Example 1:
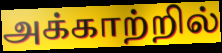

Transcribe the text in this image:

அக்காற்றில்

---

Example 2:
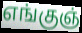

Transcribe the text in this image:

எங்குஞ்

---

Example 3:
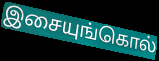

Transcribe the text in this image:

இசையுங்கொல்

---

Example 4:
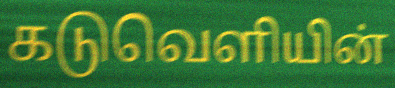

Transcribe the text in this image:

கடுவெளியின்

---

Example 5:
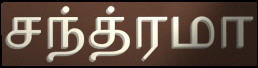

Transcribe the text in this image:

சந்த்ரமா